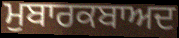
ਮੁਬਾਰਕਬਾਅਦ